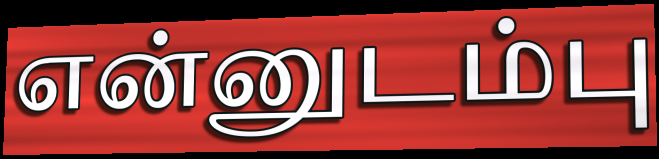
என்னுடம்பு